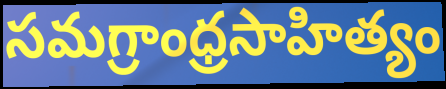
సమగ్రాంధ్రసాహిత్యం